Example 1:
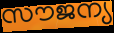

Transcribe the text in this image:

സൗജന്യ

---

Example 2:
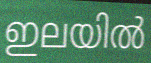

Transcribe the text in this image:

ഇലയിൽ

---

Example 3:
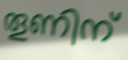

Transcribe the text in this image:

തൂണിന്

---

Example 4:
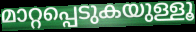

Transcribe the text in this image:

മാറ്റപ്പെടുകയുള്ളൂ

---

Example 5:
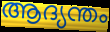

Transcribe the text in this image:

ആദ്യന്തം